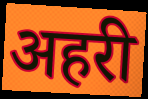
अहरी